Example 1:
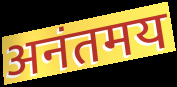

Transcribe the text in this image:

अनंतमय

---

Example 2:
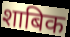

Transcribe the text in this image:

शाबिक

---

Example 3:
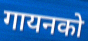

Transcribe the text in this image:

गायनको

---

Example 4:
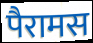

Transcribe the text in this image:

पैरामस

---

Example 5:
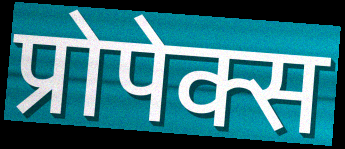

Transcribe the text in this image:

प्रोपेक्स